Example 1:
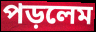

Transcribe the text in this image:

পড়লেম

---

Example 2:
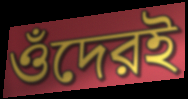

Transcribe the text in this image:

ওঁদেরই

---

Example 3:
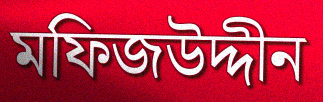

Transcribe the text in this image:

মফিজউদ্দীন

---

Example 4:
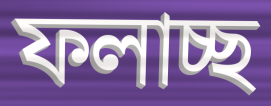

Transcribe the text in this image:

ফলাচ্ছ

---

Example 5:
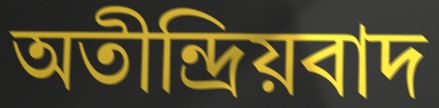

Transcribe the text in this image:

অতীন্দ্রিয়বাদ